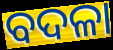
ବଦଳା